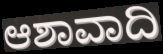
ಆಶಾವಾದಿ